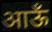
आऊँ